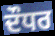
ਦੌਧਰ